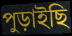
পুড়াইছি